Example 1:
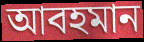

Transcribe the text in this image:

আবহমান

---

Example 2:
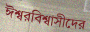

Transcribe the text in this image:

ঈশ্বরবিশ্বাসীদের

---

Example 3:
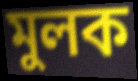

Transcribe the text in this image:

মুলক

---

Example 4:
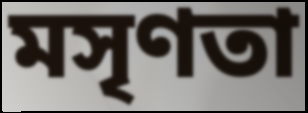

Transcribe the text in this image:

মসৃণতা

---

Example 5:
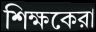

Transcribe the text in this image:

শিক্ষকেরা